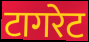
टागरेट